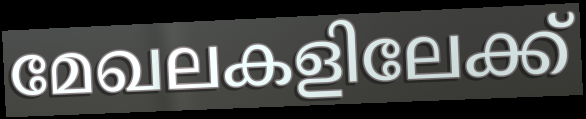
മേഖലകളിലേക്ക്